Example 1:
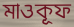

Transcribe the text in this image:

মাওকূফ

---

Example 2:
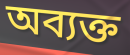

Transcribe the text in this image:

অব্যক্ত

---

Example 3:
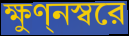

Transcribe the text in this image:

ক্ষুণ্নস্বরে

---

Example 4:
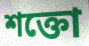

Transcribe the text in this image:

শক্তো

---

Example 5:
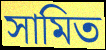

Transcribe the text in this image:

সামিত